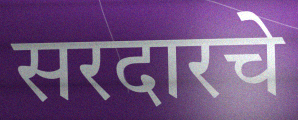
सरदारचे